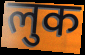
लुक